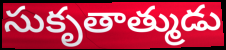
సుకృతాత్ముడు